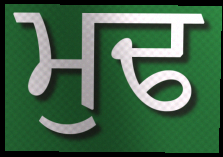
ਮੁਢ